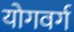
योगवर्ग